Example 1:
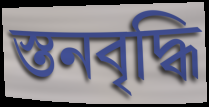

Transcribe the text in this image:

স্তনবৃদ্ধি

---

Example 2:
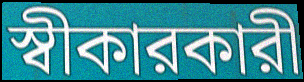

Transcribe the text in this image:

স্বীকারকারী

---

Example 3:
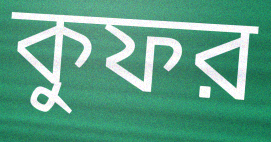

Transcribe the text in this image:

কুফর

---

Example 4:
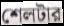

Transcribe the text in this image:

শেলটার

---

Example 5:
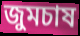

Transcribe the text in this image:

জুমচাষ